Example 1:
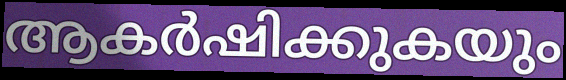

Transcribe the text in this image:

ആകർഷിക്കുകയും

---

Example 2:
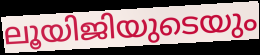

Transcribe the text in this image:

ലൂയിജിയുടെയും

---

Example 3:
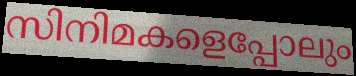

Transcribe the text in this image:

സിനിമകളെപ്പോലും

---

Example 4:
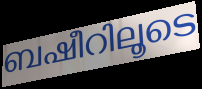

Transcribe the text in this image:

ബഷീറിലൂടെ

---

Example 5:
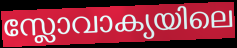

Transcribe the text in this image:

സ്ലോവാക്യയിലെ